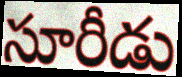
సూరీడు